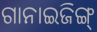
ଗାନାଇଜିଙ୍ଗ୍